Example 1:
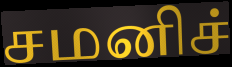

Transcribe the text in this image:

சமனிச்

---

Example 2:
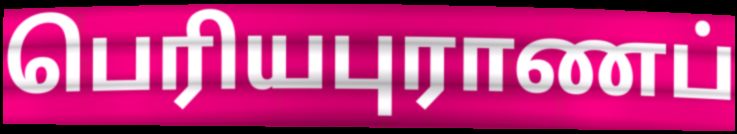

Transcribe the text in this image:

பெரியபுராணப்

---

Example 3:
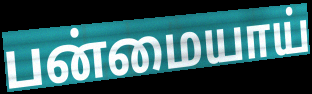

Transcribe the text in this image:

பன்மையாய்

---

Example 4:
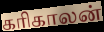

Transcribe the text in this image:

கரிகாலன்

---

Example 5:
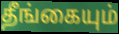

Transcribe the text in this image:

தீங்கையும்